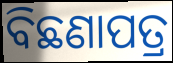
ବିଛଣାପତ୍ର